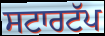
ਸਟਾਰਟੱਪ